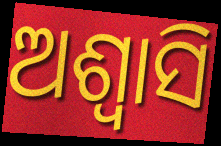
ଅଶ୍ୱାସି